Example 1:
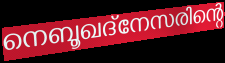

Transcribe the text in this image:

നെബൂഖദ്നേസരിന്റെ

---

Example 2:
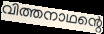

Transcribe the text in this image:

വിത്തനാഥന്റെ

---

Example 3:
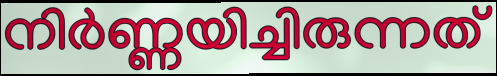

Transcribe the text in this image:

നിർണ്ണയിച്ചിരുന്നത്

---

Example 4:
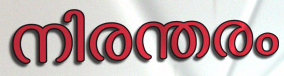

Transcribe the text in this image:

നിരന്തരം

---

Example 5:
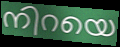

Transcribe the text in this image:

നിറയെ